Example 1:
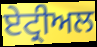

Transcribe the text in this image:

ਏਟ੍ਰੀਅਲ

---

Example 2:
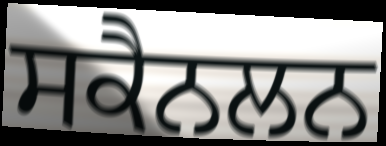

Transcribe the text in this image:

ਸਕੈਨਲਨ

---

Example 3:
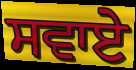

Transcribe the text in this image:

ਸਵਾਏ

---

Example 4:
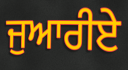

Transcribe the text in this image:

ਜੁਆਰੀਏ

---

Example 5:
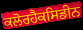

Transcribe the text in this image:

ਕਲੋਰਹੈਕਸਿਡੀਨ